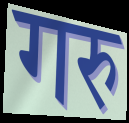
गरु